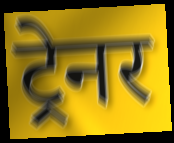
ट्रेनर